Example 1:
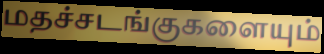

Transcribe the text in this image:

மதச்சடங்குகளையும்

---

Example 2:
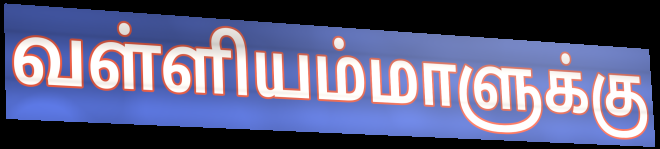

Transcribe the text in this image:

வள்ளியம்மாளுக்கு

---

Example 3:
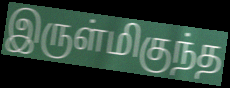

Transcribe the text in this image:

இருள்மிகுந்த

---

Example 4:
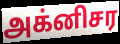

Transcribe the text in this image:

அக்னிசர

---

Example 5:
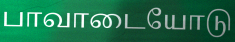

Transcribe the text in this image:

பாவாடையோடு